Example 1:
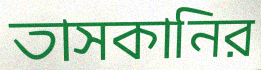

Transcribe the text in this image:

তাসকানির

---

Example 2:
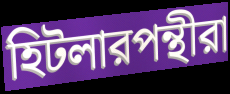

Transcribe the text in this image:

হিটলারপন্থীরা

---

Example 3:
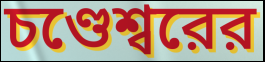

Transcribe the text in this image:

চণ্ডেশ্বরের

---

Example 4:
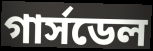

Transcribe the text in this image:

গার্সডেল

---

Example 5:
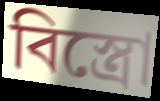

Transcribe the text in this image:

বিস্ত্রো